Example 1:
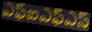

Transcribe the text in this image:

ఎఫ్ఐఎఫ్ఎస్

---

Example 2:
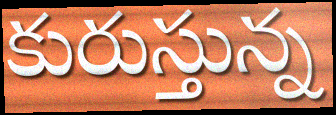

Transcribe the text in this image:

కురుస్తున్న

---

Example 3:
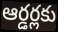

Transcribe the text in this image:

ఆర్డర్లకు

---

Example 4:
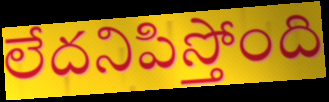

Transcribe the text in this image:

లేదనిపిస్తోంది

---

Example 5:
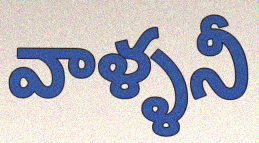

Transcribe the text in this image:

వాళ్ళనీ